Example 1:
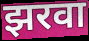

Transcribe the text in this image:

झरवा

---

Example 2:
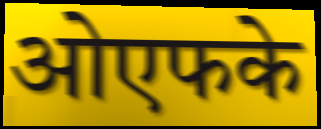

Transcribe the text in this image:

ओएफके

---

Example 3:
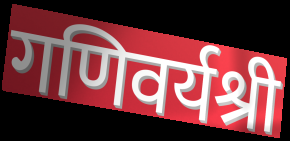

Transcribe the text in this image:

गणिवर्यश्री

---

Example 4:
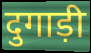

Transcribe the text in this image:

दुगाड़ी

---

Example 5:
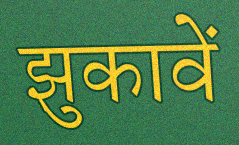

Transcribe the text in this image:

झुकावें